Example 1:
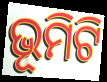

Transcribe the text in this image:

ଭୂମିଟି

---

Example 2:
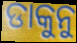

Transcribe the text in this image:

ଡାକୁନୁ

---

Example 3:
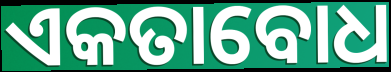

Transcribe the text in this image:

ଏକତାବୋଧ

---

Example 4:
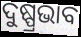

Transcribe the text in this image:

ଦୁଷ୍ପ୍ରଭାବ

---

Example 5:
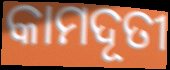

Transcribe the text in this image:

କାମଦୂତୀ